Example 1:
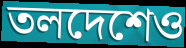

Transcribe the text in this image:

তলদেশেও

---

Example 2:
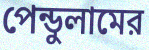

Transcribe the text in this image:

পেন্ডুলামের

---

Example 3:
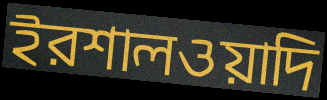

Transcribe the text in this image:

ইরশালওয়াদি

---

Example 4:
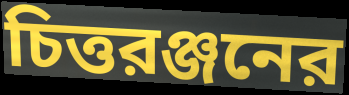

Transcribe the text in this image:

চিত্তরঞ্জনের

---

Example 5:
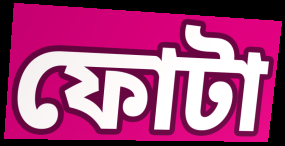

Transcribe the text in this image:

ফোটা